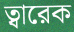
ত্বারেক